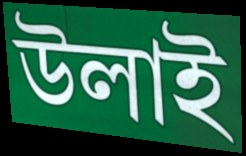
উলাই